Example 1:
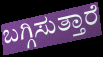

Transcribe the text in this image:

ಬಗ್ಗಿಸುತ್ತಾರೆ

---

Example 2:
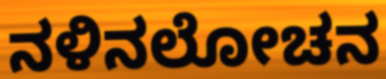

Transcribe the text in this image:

ನಳಿನಲೋಚನ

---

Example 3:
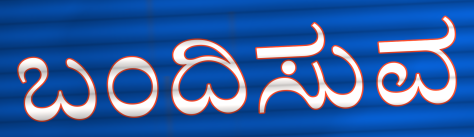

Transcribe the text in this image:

ಬಂದಿಸುವ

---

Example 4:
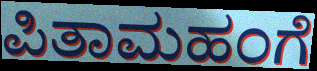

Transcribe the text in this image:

ಪಿತಾಮಹಂಗೆ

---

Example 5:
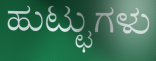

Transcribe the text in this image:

ಹುಟ್ಟುಗಳು